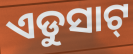
ଏଡୁସାଟ୍